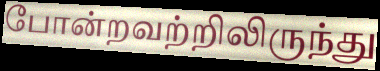
போன்றவற்றிலிருந்து